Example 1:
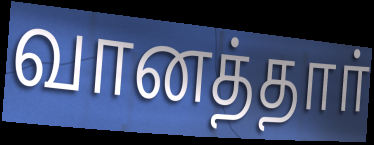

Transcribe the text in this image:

வானத்தார்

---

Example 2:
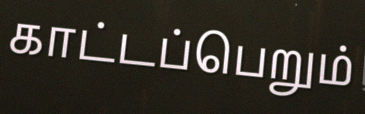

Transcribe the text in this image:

காட்டப்பெறும்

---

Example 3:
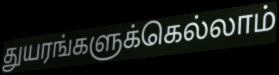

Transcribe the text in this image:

துயரங்களுக்கெல்லாம்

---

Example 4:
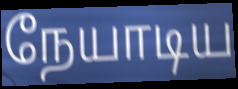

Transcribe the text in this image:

நேயாடிய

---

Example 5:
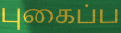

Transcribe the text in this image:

புகைப்ப